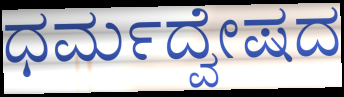
ಧರ್ಮದ್ವೇಷದ